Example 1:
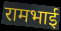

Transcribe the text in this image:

रामभाई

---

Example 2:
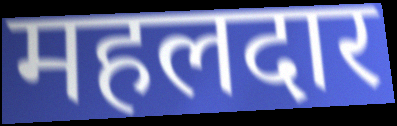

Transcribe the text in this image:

महलदार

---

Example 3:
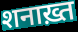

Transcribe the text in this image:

शनाख़्त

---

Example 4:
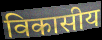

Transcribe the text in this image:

विकासीय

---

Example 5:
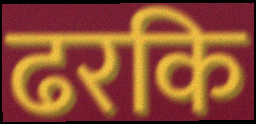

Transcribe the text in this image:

ढरकि